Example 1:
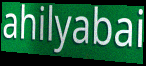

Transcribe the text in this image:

ahilyabai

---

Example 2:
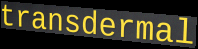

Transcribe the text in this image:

transdermal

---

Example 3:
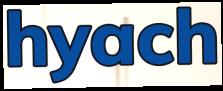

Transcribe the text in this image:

hyach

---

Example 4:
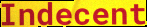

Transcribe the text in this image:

Indecent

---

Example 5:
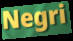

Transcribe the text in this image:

Negri